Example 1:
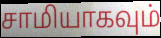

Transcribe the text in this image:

சாமியாகவும்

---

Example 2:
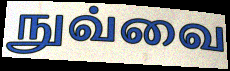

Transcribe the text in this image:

நுவ்வை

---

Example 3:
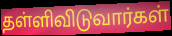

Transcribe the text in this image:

தள்ளிவிடுவார்கள்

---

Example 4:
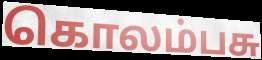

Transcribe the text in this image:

கொலம்பசு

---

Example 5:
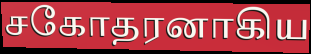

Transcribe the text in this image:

சகோதரனாகிய